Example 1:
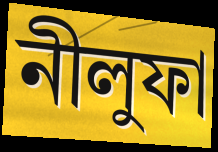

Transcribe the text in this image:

নীলুফা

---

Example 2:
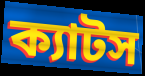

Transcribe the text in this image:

ক্যাটস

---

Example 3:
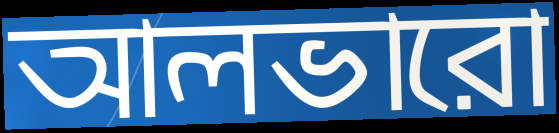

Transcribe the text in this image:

আলভারো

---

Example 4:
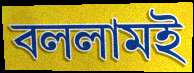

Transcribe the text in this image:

বললামই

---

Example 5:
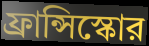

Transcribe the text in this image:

ফ্রান্সিস্কোর